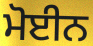
ਮੋਈਨ